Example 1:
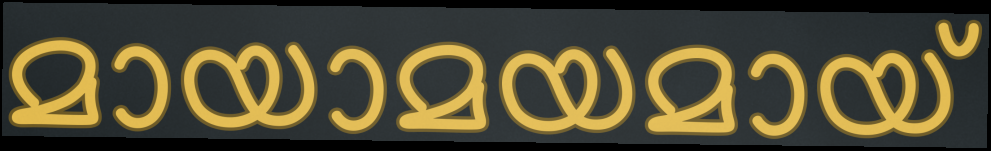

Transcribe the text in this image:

മായാമയമായ്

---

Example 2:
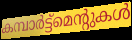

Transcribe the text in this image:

കമ്പാർട്ട്മെന്റുകൾ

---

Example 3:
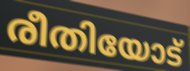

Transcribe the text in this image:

രീതിയോട്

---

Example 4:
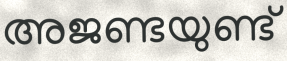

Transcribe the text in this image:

അജണ്ടയുണ്ട്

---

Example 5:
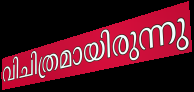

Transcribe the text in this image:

വിചിത്രമായിരുന്നു